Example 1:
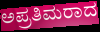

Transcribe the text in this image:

ಅಪ್ರತಿಮರಾದ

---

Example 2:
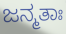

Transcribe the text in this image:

ಜನ್ಮತಾಃ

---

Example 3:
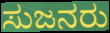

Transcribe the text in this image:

ಸುಜನರು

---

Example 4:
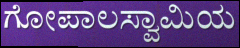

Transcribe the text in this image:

ಗೋಪಾಲಸ್ವಾಮಿಯ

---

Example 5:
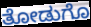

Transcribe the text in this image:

ತೋಡುಗೊ